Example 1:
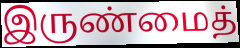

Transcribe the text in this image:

இருண்மைத்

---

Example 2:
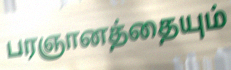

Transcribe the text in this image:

பரஞானத்தையும்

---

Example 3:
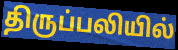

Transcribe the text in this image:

திருப்பலியில்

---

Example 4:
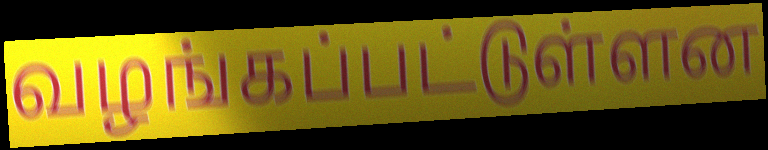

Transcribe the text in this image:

வழங்கப்பட்டுள்ளன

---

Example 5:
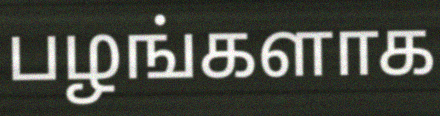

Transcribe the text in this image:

பழங்களாக